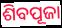
ଶିବପୂଜା